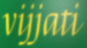
vijjati